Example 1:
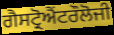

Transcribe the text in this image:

ਗੈਸਟ੍ਰੋਐਂਟਰੌਲੋਜੀ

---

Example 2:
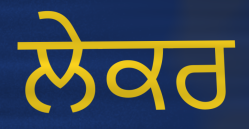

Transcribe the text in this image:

ਲੇਕਰ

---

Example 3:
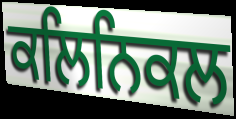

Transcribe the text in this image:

ਕਲਿਨਿਕਲ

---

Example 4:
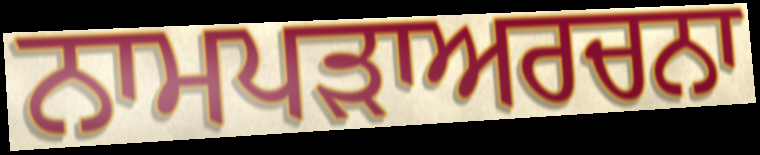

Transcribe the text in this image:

ਨਾਮਪੜਾਅਰਚਨਾ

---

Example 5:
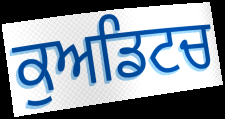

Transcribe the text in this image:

ਕੁਅਡਿਟਚ